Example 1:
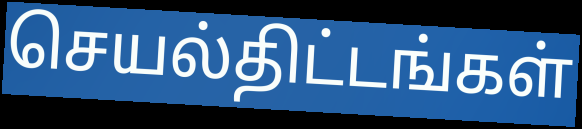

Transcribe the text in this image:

செயல்திட்டங்கள்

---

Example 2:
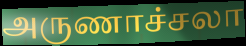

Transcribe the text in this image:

அருணாச்சலா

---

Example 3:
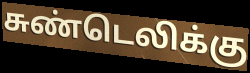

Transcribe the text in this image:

சுண்டெலிக்கு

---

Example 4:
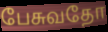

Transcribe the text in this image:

பேசுவதோ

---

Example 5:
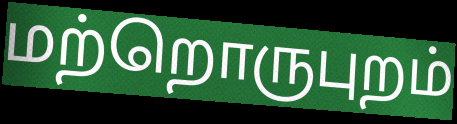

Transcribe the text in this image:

மற்றொருபுறம்